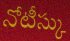
నోటీస్కు